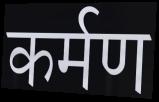
कर्मण